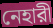
নেহারী